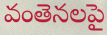
వంతెనలపై